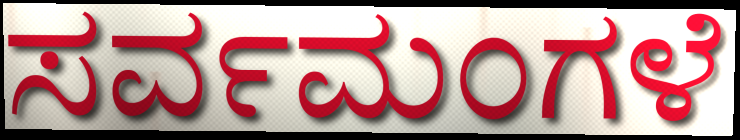
ಸರ್ವಮಂಗಳೆ